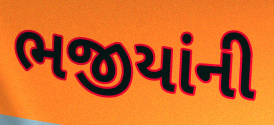
ભજીયાંની